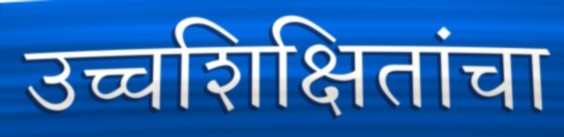
उच्चशिक्षितांचा